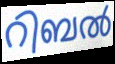
റിബൽ